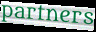
partners